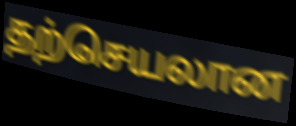
தற்செயலான